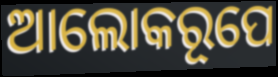
ଆଲୋକରୂପେ